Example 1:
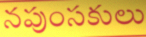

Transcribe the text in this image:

నపుంసకులు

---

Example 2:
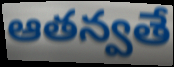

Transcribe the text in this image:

ఆతన్వతే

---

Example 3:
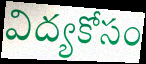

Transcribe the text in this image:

విద్యకోసం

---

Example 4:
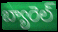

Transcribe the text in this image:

బ్యారెల్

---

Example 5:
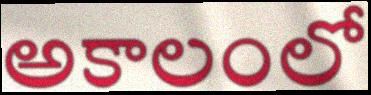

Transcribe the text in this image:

అకాలంలో